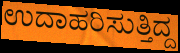
ಉದಾಹರಿಸುತ್ತಿದ್ದ